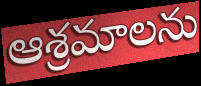
ఆశ్రమాలను